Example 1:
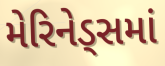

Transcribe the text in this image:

મેરિનેડ્સમાં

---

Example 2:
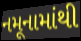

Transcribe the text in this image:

નમૂનામાંથી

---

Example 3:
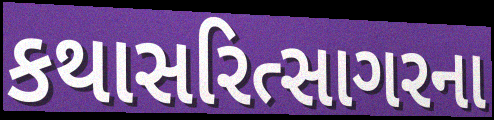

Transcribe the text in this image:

કથાસરિત્સાગરના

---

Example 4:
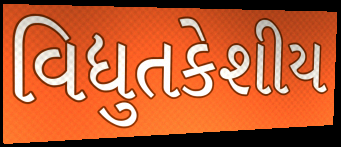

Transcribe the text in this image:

વિદ્યુતકેશીય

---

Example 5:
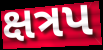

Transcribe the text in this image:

ક્ષત્રપ